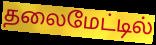
தலைமேட்டில்